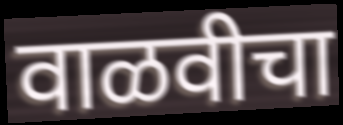
वाळवीचा